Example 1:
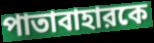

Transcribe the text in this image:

পাতাবাহারকে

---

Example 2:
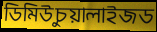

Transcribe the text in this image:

ডিমিউচুয়ালাইজড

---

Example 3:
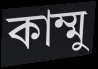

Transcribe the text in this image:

কাম্মু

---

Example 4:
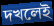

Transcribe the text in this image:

দখলেই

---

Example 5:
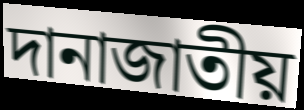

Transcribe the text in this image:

দানাজাতীয়